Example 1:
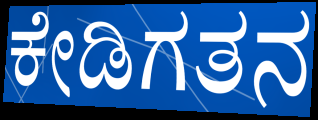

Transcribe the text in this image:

ಕೇಡಿಗತನ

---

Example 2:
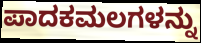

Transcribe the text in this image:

ಪಾದಕಮಲಗಳನ್ನು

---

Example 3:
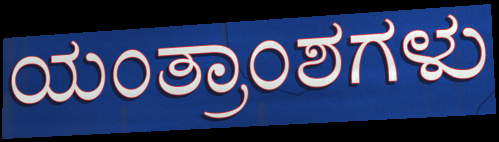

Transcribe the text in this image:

ಯಂತ್ರಾಂಶಗಳು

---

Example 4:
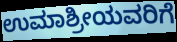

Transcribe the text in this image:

ಉಮಾಶ್ರೀಯವರಿಗೆ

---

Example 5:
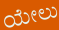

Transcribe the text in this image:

ಯೇಲು